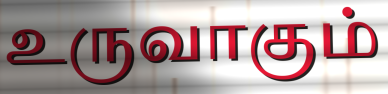
உருவாகும்